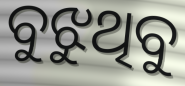
ବୁଝୁଥିବୁ